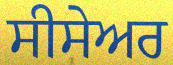
ਸੀਸੇਅਰ